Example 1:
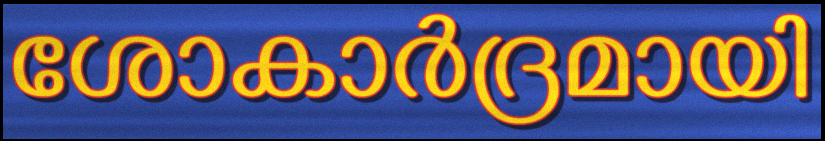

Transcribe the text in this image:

ശോകാർദ്രമായി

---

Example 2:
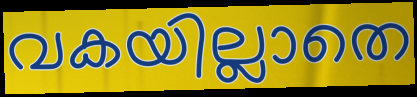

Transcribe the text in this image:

വകയില്ലാതെ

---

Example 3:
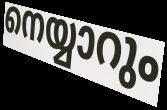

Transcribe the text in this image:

നെയ്യാറും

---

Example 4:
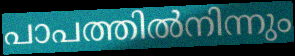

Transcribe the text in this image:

പാപത്തിൽനിന്നും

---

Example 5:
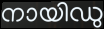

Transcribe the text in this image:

നായിഡു